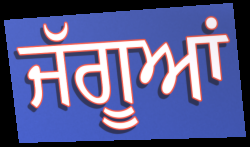
ਜੱਗੂਆਂ